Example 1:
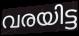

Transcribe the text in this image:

വരയിട്ട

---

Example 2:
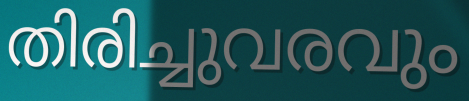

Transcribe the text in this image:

തിരിച്ചുവരവും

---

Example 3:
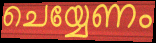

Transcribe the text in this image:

ചെയ്യേണം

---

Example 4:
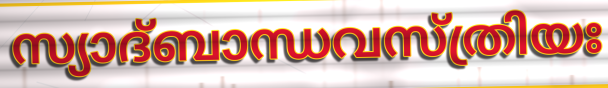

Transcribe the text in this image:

സ്യാദ്ബാന്ധവസ്ത്രിയഃ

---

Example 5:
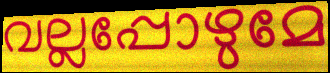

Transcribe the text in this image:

വല്ലപ്പോഴുമേ